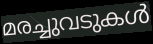
മരച്ചുവടുകൾ